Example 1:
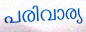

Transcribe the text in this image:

പരിവാര്യ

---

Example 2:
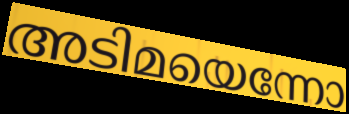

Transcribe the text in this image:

അടിമയെന്നോ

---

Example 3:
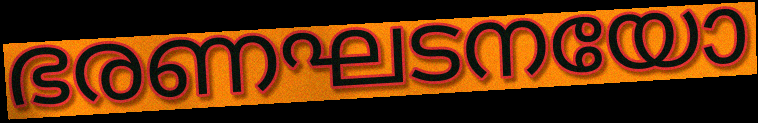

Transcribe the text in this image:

ഭരണഘടനയോ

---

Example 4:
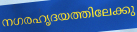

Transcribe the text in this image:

നഗരഹൃദയത്തിലേക്കു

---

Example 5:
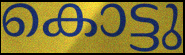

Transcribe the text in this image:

കൊട്ടു